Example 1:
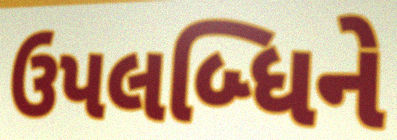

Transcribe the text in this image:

ઉપલબ્ધિને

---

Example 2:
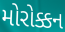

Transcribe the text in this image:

મોરોક્કન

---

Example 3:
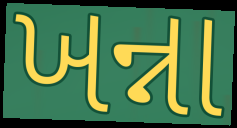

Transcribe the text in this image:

ખન્ના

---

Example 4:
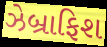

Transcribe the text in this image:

ઝેબ્રાફિશ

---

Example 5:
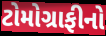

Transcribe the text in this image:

ટોમોગ્રાફીનો